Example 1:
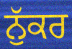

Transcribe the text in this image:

ਨੁੱਕਰ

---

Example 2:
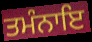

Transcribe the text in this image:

ਤਮੰਨਾਇ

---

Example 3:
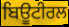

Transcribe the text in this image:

ਬਿਊਟੀਰਲ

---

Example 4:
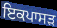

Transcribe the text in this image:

ਇਕਪਾਸੜ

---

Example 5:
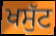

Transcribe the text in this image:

ਖਸੁੱਟ